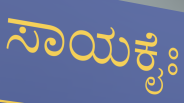
ಸಾಯಕೈಃ